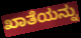
ಖಾತೆಯನ್ನು